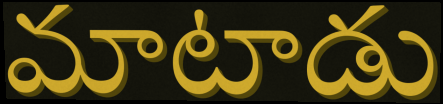
మాటాడు